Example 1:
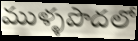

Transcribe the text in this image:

ముళ్ళపొదలో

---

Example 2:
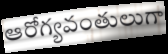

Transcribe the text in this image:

ఆరోగ్యవంతులుగా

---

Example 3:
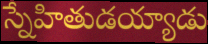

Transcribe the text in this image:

స్నేహితుడయ్యాడు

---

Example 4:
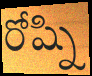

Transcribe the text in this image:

రోష్ని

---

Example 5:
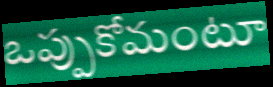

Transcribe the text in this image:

ఒప్పుకోమంటూ